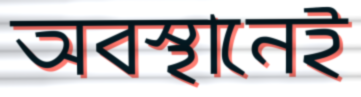
অবস্থানেই